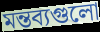
মন্তব্যগুলো